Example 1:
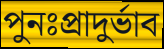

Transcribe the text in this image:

পুনঃপ্রাদুর্ভাব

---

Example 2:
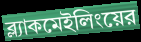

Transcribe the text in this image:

ব্ল্যাকমেইলিংয়ের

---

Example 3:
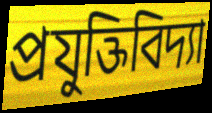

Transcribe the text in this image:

প্রযুক্তিবিদ্যা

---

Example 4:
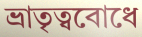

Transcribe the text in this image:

ভ্রাতৃত্ববোধে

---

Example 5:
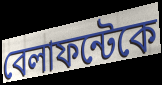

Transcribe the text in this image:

বেলাফন্টেকে